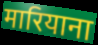
मारियाना